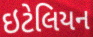
ઇટેલિયન